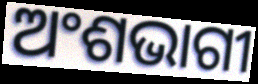
ଅଂଶଭାଗୀ